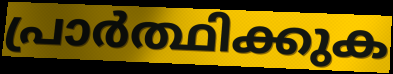
പ്രാർത്ഥിക്കുക